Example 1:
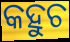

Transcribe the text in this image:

କହୁଚ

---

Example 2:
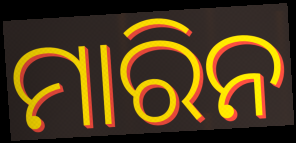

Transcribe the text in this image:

ମାରିନ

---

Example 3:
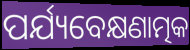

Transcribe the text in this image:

ପର୍ଯ୍ୟବେକ୍ଷଣାତ୍ମକ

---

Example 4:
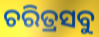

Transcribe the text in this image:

ଚରିତ୍ରସବୁ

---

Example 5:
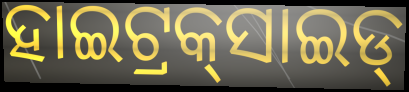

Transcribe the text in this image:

ହାଇଟ୍ରକ୍‌ସାଇଡ୍